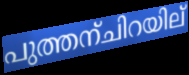
പുത്തന്ചിറയില്